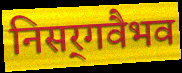
निसर्गवैभव